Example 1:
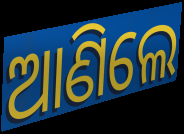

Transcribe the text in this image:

ଆଣିଲେ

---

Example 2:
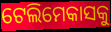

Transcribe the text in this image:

ଟେଲିମେକାସକୁ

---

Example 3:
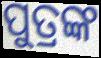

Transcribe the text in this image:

ପୁତ୍ରଙ୍କ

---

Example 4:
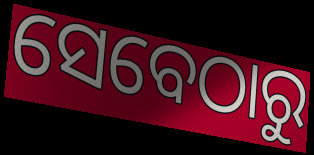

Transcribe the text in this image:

ସେବେଠାରୁ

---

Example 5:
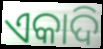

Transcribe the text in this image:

ଏକାଦି